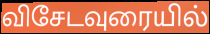
விசேடவுரையில்